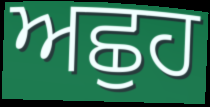
ਅਛੁਹ